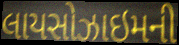
લાયસોઝાઇમની